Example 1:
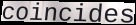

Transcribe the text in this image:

coincides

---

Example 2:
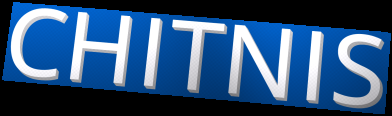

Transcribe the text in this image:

CHITNIS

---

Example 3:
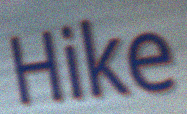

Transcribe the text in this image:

Hike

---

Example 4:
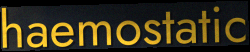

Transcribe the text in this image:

haemostatic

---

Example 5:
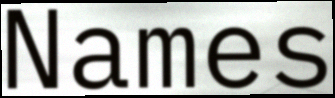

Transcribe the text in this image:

Names